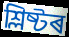
শ্লিষ্টৰ